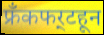
फ्रँकफर्टहून